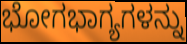
ಭೋಗಭಾಗ್ಯಗಳನ್ನು